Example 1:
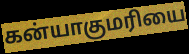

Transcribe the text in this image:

கன்யாகுமரியை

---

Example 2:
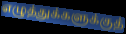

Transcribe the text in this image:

எழுத்துக்களுக்குத்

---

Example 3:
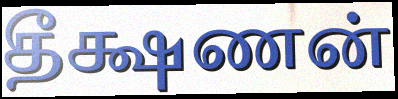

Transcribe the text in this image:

தீக்ஷணன்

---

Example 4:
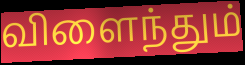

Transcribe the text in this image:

விளைந்தும்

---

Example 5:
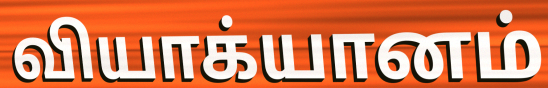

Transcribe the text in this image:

வியாக்யானம்